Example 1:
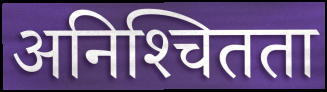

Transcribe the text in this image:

अनिश्‍चितता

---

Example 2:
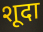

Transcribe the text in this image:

शूदा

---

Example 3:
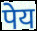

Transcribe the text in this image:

पेय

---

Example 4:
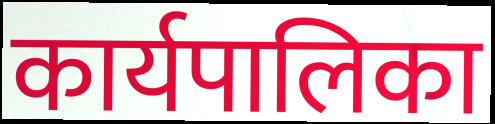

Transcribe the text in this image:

कार्यपालिका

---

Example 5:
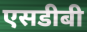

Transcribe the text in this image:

एसडीबी